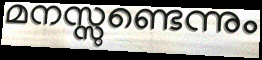
മനസ്സുണ്ടെന്നും